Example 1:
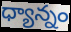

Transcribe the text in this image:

ధ్యాన్నం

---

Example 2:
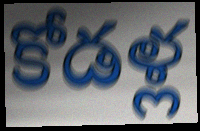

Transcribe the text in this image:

కోడళ్ల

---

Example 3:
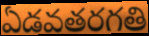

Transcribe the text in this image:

ఏడవతరగతి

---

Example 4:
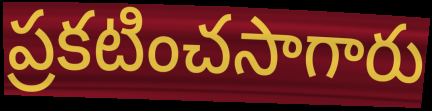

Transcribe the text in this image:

ప్రకటించసాగారు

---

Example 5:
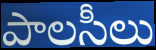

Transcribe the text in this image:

పాలసీలు